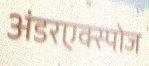
अंडरएक्स्पोज